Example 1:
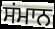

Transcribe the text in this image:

ਸਂਮਾਨ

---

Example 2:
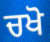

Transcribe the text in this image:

ਚਖੋ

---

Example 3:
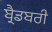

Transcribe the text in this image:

ਬ੍ਰੈਡਬਰੀ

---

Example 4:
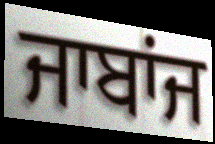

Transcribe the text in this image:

ਜਾਬਾਂਜ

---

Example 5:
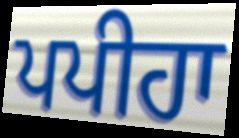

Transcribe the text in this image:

ਪਪੀਹਾ